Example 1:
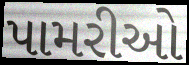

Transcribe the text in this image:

પામરીઓ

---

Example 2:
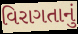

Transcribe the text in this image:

વિરાગતાનું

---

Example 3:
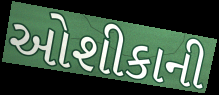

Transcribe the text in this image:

ઓશીકાની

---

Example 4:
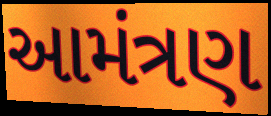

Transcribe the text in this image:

આમંત્રણ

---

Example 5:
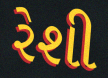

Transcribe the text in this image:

રેશી